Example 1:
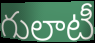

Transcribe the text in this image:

గులాటీ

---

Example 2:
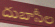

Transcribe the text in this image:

దుబాసీల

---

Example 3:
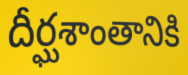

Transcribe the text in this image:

దీర్ఘశాంతానికి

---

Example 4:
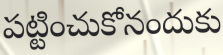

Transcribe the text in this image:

పట్టించుకోనందుకు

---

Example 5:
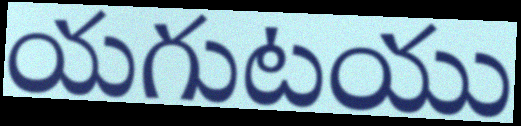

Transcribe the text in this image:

యగుటయు